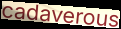
cadaverous